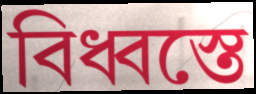
বিধ্বস্তে